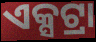
ଏକ୍ସଟ୍ରା